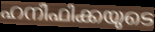
ഹനീഫിക്കയുടെ